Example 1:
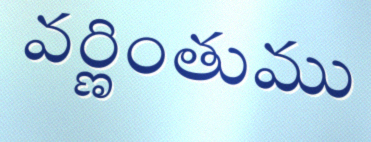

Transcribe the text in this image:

వర్ణింతుము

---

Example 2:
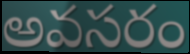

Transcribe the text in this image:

అవసరం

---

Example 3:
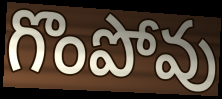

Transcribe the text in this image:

గొంపోవు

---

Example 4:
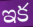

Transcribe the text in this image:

ఇక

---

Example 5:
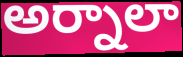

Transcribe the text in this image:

అర్నాలా